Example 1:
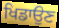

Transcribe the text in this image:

ਖਿਡਾਉਣ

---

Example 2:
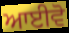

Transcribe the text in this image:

ਆਈਵੋ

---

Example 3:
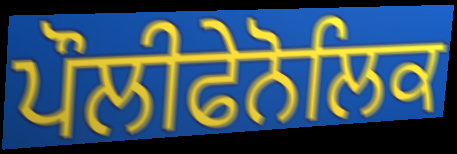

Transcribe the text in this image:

ਪੌਲੀਫੇਨੋਲਿਕ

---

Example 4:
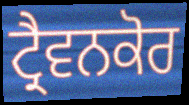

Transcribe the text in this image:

ਟ੍ਰੈਵਨਕੋਰ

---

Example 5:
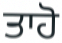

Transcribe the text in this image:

ਤਾਹੋ